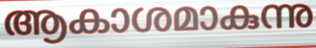
ആകാശമാകുന്നു